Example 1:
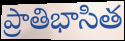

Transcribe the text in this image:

ప్రాతిభాసిత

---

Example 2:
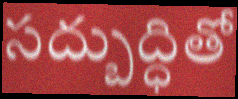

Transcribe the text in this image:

సద్బుద్ధితో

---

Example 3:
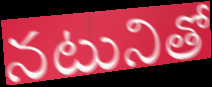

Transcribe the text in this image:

నటునితో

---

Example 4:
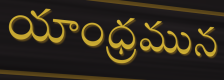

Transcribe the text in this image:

యాంధ్రమున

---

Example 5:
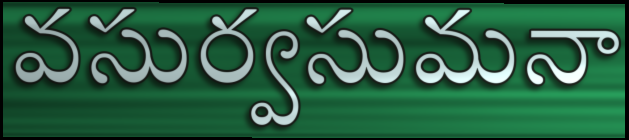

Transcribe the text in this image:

వసుర్వసుమనా